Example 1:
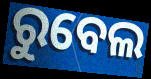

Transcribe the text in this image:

ରୁବେଲ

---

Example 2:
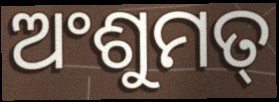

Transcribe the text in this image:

ଅଂଶୁମତ୍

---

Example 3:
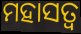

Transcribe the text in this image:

ମହାସତ୍ୱ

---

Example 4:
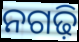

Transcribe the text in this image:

ନଗଢ଼ି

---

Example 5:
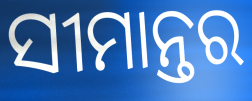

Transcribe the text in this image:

ସୀମାନ୍ତର